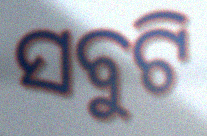
ସବୁଟି